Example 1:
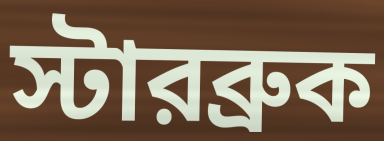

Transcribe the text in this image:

স্টারব্রুক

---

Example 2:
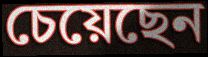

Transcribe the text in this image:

চেয়েছেন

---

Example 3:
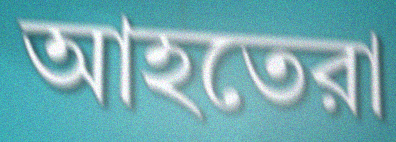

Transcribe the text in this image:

আহতেরা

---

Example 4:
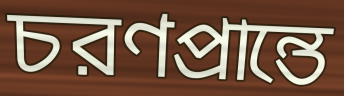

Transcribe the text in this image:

চরণপ্রান্তে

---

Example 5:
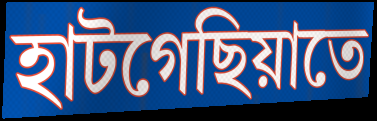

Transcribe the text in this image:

হাটগেছিয়াতে